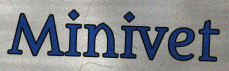
Minivet